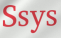
Ssys